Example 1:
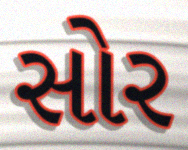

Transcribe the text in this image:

સોર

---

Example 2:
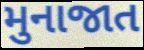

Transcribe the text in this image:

મુનાજાત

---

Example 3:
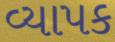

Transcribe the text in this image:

વ્યાપક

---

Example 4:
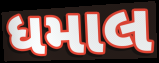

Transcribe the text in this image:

ધમાલ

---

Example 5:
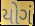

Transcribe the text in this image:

યોગં